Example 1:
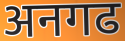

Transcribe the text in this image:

अनगढ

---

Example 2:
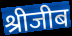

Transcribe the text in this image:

श्रीजीब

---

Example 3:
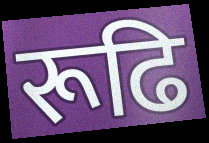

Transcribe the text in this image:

रूढि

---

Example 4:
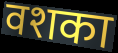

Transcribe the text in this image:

वशका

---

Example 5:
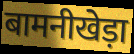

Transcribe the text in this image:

बामनीखेड़ा